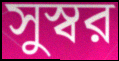
সুস্বর